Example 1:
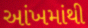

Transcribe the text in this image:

આંખમાંથી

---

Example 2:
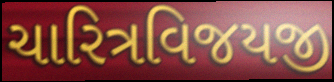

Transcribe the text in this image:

ચારિત્રવિજયજી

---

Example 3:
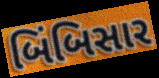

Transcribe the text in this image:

બિંબિસાર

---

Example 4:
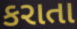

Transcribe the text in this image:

કરાતા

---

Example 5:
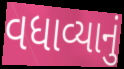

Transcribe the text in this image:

વધાવ્યાનું